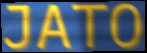
JATO